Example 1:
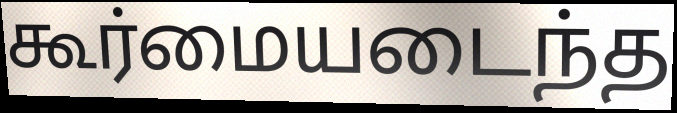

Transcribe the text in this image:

கூர்மையடைந்த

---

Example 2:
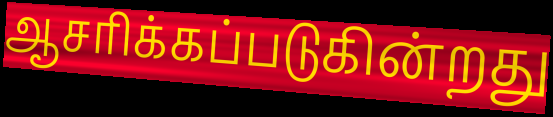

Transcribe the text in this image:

ஆசரிக்கப்படுகின்றது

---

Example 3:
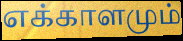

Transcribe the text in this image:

எக்காளமும்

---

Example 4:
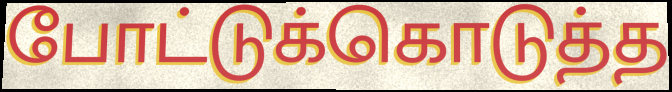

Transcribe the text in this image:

போட்டுக்கொடுத்த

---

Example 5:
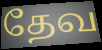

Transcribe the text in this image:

தேவ